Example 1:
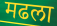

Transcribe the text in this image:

मढला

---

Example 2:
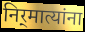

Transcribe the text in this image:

निर्मात्यांना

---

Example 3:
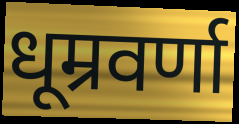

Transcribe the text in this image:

धूम्रवर्णा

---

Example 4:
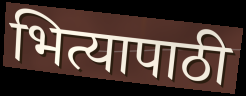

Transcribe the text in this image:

भित्यापाठी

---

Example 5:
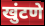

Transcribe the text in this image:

खुंटणे